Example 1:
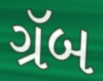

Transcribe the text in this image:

ગ્રૅબ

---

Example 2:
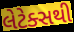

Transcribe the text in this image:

લેટેક્સથી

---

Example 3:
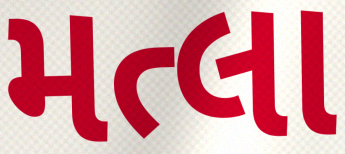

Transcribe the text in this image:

મત્લા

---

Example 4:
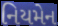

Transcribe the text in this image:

નિયમેન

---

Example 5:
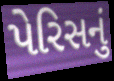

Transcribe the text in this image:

પેરિસનું